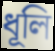
ধূলি